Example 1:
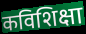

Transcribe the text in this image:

कविशिक्षा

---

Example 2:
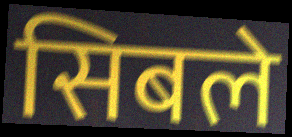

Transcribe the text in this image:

सिबले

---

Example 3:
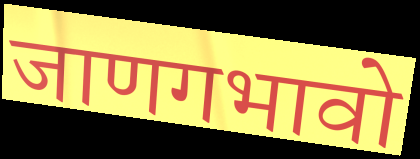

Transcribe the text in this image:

जाणगभावो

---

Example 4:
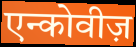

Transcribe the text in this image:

एन्कोवीज़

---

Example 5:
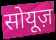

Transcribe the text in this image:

सोयूज़